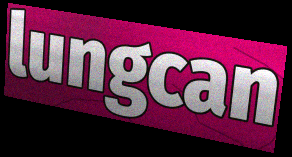
lungcan